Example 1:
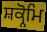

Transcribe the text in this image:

ਸ਼ਕ੍ਨੋਮਿ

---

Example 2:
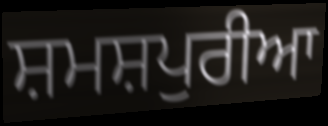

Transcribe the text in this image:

ਸ਼ਮਸ਼ਪੁਰੀਆ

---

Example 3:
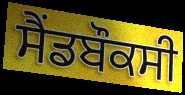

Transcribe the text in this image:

ਸੈਂਡਬੌਕਸੀ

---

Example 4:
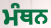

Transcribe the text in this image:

ਮੰਥਨ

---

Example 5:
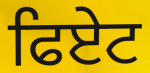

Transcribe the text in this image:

ਫਿਏਟ